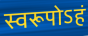
स्वरूपोऽहं